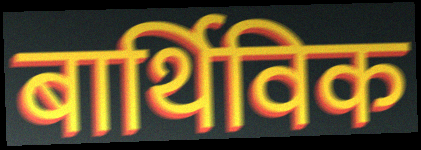
बार्थिविक